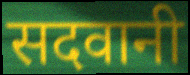
सदवानी